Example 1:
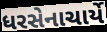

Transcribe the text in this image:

ધરસેનાચાર્યે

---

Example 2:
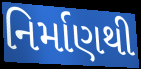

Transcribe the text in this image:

નિર્માણથી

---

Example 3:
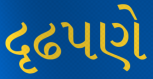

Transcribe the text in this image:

દૃઢપણે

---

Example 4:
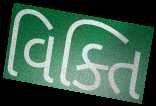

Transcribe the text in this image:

વિક્તિ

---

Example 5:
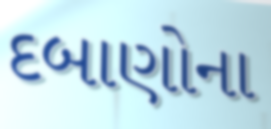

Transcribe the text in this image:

દબાણોના